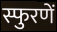
स्फुरणें